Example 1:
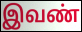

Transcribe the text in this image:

இவண்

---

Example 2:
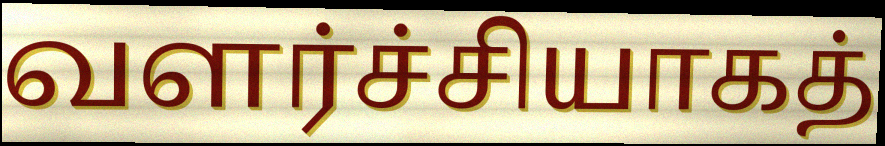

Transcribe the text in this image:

வளர்ச்சியாகத்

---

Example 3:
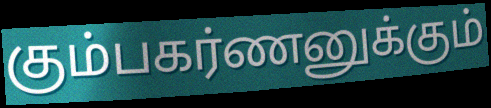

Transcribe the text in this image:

கும்பகர்ணனுக்கும்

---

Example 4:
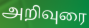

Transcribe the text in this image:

அறிவுரை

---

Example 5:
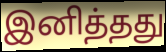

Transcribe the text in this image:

இனித்தது